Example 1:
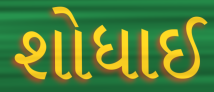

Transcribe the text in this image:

શોધાઈ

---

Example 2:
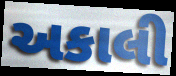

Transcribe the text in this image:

અકાલી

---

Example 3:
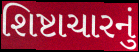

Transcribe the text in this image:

શિષ્ટાચારનું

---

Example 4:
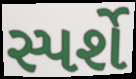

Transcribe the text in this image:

સ્પર્શે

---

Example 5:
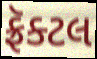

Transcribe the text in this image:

ફ્રૅક્ટલ